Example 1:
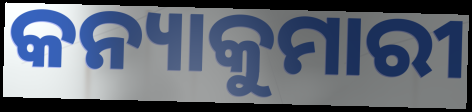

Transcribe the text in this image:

କନ୍ୟାକୁମାରୀ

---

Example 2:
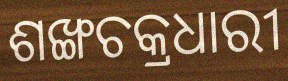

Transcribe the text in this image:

ଶଙ୍ଖଚକ୍ରଧାରୀ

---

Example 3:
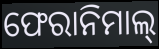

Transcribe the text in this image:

ଫେରାନିମାଲ୍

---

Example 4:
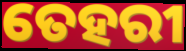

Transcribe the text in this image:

ତେହରୀ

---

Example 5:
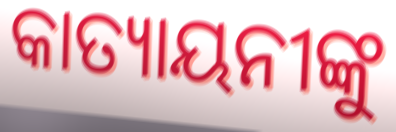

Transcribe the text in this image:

କାତ୍ୟାୟନୀଙ୍କୁ